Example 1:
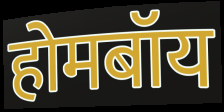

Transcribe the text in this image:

होमबॉय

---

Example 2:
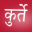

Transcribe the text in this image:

कुर्ते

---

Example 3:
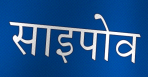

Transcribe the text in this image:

साइपोव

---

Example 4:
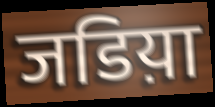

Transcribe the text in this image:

जडिय़ा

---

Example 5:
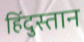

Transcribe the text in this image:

हिंदुस्तान